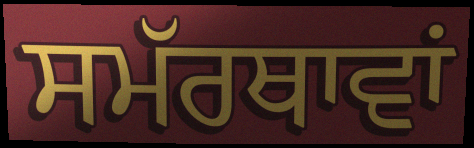
ਸਮੱਰਥਾਵਾਂ